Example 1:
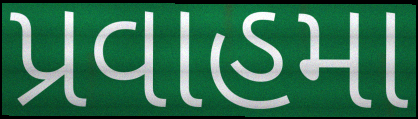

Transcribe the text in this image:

પ્રવાહમા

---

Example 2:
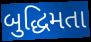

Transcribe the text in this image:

બુદ્ધિમતા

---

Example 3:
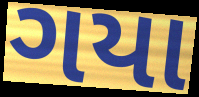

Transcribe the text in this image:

ગયા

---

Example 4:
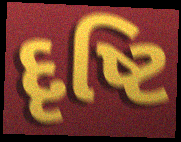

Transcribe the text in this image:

દૃષ્ટિ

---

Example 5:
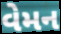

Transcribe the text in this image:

વેમન